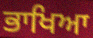
ਭਾਖਿਆ